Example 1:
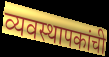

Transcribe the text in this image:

व्यवस्थापकांची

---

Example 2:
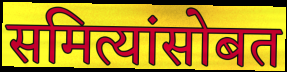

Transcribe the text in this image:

समित्यांसोबत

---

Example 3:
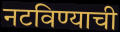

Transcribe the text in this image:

नटविण्याची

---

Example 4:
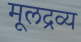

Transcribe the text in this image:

मूलद्रव्य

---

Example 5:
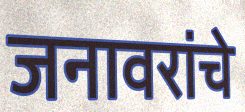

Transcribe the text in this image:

जनावरांचे